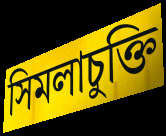
সিমলাচুক্তি